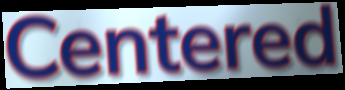
Centered